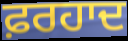
ਫ਼ਰਹਾਦ